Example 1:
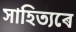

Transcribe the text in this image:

সাহিত্যৰে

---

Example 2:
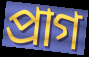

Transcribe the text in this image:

প্ৰাগ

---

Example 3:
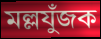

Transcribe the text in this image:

মল্লযুঁজক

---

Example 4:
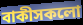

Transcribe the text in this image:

বাকীসকলো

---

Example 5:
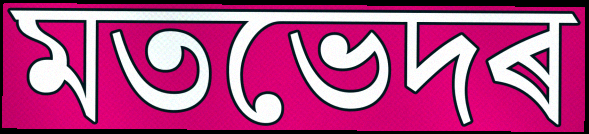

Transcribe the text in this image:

মতভেদৰ